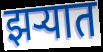
झर्‍यात